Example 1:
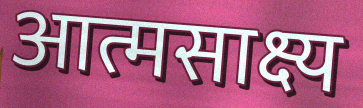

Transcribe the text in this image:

आत्मसाक्ष्य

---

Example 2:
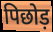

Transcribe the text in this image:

पिछोड़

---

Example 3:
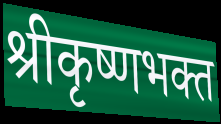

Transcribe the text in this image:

श्रीकृष्णभक्त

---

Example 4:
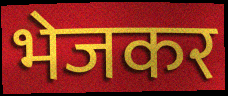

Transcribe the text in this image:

भेजकर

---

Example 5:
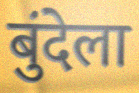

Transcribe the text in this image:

बुंदेला